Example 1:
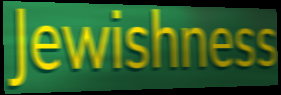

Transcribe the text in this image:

Jewishness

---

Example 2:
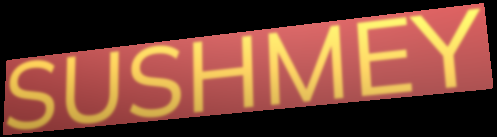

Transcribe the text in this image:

SUSHMEY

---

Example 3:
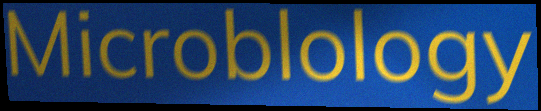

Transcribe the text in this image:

Microblology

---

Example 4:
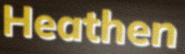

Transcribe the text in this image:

Heathen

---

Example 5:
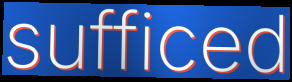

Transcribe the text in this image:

sufficed